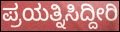
ಪ್ರಯತ್ನಿಸಿದ್ದೀರಿ